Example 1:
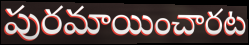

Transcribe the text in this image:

పురమాయించారట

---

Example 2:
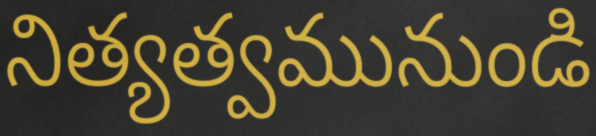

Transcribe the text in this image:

నిత్యత్వమునుండి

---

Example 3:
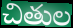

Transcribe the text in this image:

చితుల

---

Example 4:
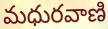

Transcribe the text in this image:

మధురవాణి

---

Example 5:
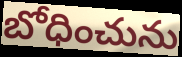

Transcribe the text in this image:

బోధించును